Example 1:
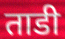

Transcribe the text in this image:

ताडी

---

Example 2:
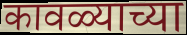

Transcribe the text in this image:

कावळ्याच्या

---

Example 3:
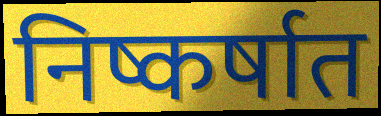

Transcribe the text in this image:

निष्कर्षात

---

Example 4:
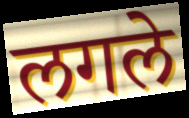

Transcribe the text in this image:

लगले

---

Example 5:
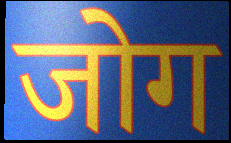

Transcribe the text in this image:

जोग